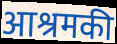
आश्रमकी